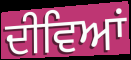
ਦੀਵਿਆਂ